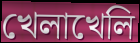
খেলাখেলি